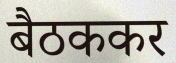
बैठककर